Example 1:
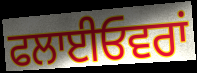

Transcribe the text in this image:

ਫਲਾਈਓਵਰਾਂ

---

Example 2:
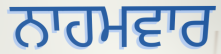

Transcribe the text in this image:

ਨਾਹਮਵਾਰ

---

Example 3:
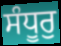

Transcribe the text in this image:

ਸੰਧੂਰੁ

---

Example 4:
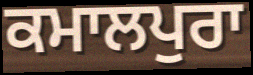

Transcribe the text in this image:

ਕਮਾਲਪੁਰਾ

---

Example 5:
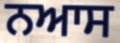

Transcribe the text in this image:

ਨਆਸ